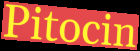
Pitocin